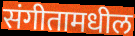
संगीतामधील